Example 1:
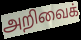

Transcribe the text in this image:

அறிவைக்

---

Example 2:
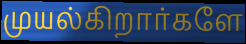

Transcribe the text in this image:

முயல்கிறார்களே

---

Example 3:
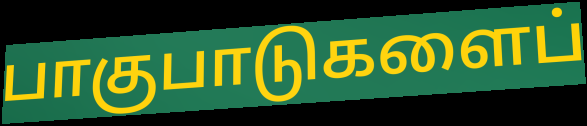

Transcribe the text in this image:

பாகுபாடுகளைப்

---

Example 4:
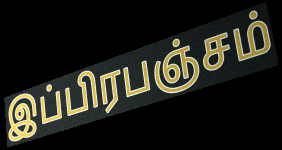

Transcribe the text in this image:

இப்பிரபஞ்சம்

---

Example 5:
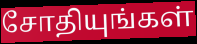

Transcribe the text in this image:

சோதியுங்கள்